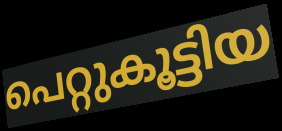
പെറ്റുകൂട്ടിയ